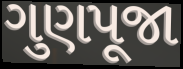
ગુણપૂજા